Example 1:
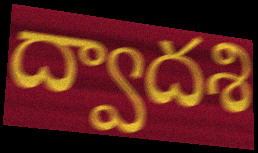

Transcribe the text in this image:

ద్వాదశి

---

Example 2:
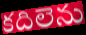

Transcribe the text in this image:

కదిలెను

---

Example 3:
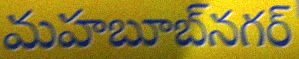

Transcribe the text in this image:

మహబూబ్‌నగర్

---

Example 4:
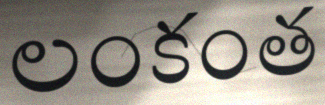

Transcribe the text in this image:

లంకంత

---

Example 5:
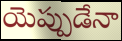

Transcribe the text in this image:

యెప్పుడేనా